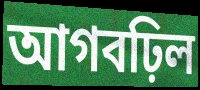
আগবঢ়িল